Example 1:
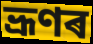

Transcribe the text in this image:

ভ্ৰূণৰ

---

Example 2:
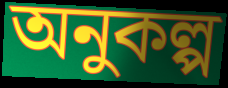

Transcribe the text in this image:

অনুকল্প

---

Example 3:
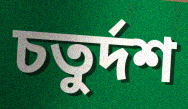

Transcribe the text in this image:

চতুৰ্দশ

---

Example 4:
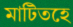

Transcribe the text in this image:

মাটিতহে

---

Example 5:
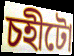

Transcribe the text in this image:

চহীটো